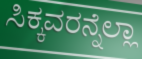
ಸಿಕ್ಕವರನ್ನೆಲ್ಲಾ